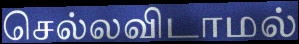
செல்லவிடாமல்